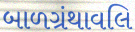
બાળગ્રંથાવલિ